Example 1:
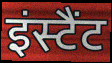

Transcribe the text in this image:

इंस्टैंट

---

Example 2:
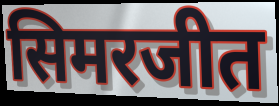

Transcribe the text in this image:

सिमरजीत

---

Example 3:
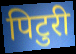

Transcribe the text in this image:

पिटुरी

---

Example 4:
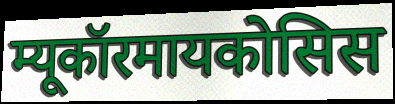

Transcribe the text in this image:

म्यूकॉरमायकोसिस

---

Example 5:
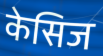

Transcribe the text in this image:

केसिज